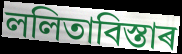
ললিতাবিস্তাৰ